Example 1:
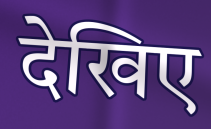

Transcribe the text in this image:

देखिए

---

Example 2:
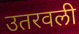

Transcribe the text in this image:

उतरवली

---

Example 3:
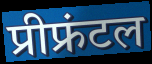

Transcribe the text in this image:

प्रीफ्रंटल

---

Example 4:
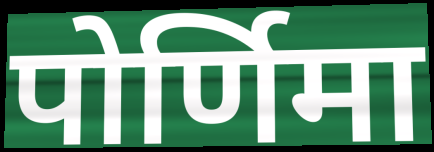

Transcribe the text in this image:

पोर्णिमा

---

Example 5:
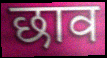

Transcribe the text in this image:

छाव